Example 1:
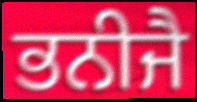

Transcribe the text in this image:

ਭਨੀਜੈ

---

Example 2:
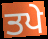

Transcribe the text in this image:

ਤਪੇ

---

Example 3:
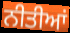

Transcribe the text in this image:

ਨੀਤੀਆਂ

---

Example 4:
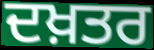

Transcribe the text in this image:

ਦਖ਼ਤਰ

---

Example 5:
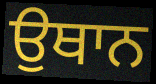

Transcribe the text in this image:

ਉਥਾਨ